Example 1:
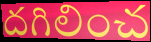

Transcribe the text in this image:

దగిలించ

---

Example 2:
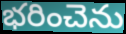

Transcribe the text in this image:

భరించెను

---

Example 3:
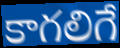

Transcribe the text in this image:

కాగలిగే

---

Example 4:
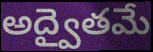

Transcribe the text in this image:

అద్వైతమే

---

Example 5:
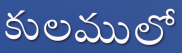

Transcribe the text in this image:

కులములో